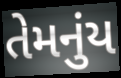
તેમનુંય